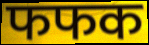
फफक